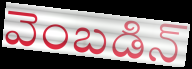
వెంబడిన్